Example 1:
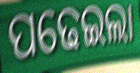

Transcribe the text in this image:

ପଢେଇଲା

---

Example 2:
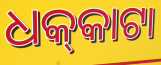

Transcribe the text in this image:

ଧକ୍‌କାଟା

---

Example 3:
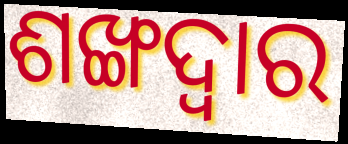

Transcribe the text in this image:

ଶଙ୍ଖଦ୍ୱାର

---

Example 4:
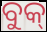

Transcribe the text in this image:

ବୁକ୍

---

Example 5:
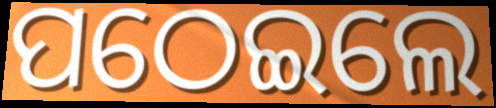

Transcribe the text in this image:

ପଠେଇଲେ